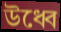
উধ্বে